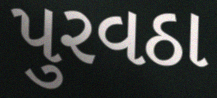
પુરવઠા